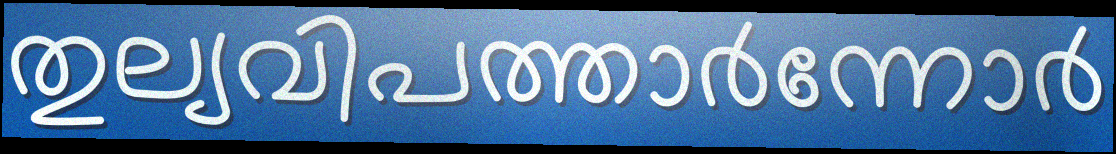
തുല്യവിപത്താർന്നോർ